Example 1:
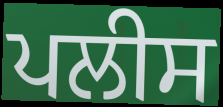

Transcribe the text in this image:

ਪਲੀਸ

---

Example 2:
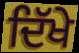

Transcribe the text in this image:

ਦਿੱਖੇ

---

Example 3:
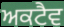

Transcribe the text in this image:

ਅਕਟੈਵ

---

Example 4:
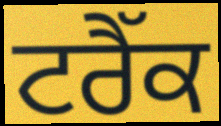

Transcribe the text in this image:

ਟਰੈੱਕ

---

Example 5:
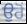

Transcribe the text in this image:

ਉਰੋਂ